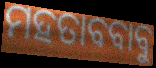
ମହତାବବାବୁ